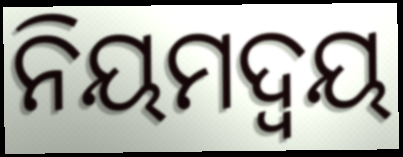
ନିୟମଦ୍ୱୟ